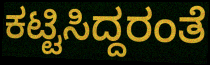
ಕಟ್ಟಿಸಿದ್ದರಂತೆ